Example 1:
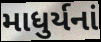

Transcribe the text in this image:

માધુર્યનાં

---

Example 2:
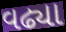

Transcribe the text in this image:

વઢ્યા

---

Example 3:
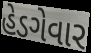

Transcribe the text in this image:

હેડગેવાર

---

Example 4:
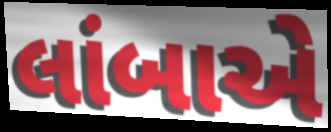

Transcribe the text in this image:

લાંબાએ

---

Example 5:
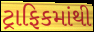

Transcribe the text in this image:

ટ્રાફિકમાંથી